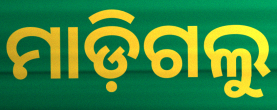
ମାଡ଼ିଗଲୁ